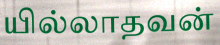
யில்லாதவன்